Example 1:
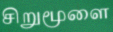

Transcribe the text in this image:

சிறுமூளை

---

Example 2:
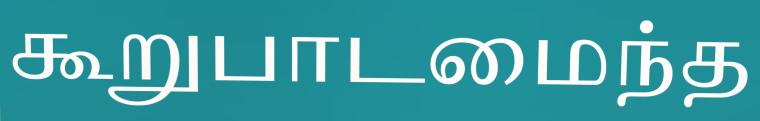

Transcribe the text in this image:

கூறுபாடமைந்த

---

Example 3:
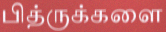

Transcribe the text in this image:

பித்ருக்களை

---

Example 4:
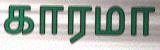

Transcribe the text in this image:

காரமா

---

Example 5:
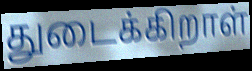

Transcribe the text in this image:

துடைக்கிறாள்